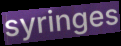
syringes